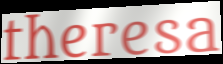
theresa